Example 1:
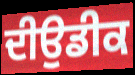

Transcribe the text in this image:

ਦੀਉਡੀਕ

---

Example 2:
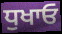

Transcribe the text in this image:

ਧੁਖਾਓ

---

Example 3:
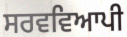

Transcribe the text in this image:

ਸਰਵਵਿਆਪੀ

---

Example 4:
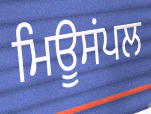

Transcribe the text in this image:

ਮਿਊਸਂਪਲ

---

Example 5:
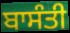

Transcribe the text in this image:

ਬਾਸੰਤੀ